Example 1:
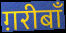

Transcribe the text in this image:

ग़रीबाँ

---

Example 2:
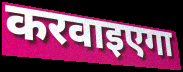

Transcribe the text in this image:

करवाइएगा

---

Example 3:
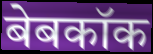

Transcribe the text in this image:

बेबकॉक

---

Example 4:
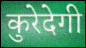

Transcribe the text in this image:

कुरेदेगी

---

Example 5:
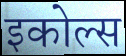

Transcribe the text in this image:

इकोल्स